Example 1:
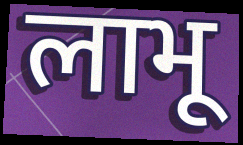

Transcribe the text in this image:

लाभू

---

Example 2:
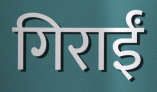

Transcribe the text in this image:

गिराईं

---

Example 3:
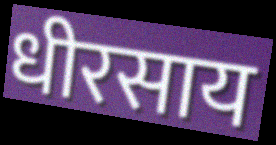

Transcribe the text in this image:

धीरसाय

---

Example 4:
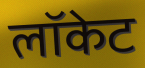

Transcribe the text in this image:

लॉकेट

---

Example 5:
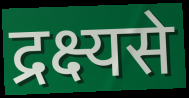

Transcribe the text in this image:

द्रक्ष्यसे